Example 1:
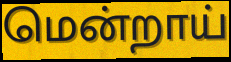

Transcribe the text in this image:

மென்றாய்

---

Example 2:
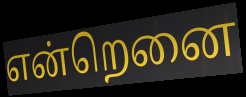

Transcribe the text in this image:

என்றெனை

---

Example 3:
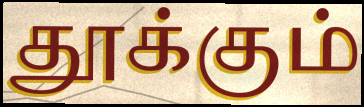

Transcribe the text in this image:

தூக்கும்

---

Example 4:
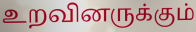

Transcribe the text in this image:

உறவினருக்கும்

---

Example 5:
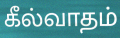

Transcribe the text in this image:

கீல்வாதம்